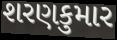
શરણકુમાર